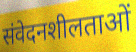
संवेदनशीलताओं